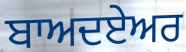
ਬਾਅਦਏਅਰ